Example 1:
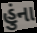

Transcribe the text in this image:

હુંના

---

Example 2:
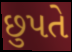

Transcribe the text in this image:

છુપતે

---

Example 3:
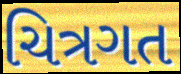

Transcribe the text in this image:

ચિત્રગત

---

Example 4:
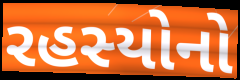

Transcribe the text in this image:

રહસ્યોનો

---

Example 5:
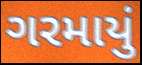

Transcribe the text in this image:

ગરમાયું